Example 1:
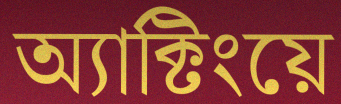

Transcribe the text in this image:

অ্যাক্টিংয়ে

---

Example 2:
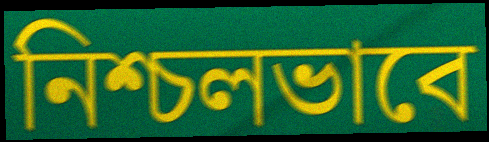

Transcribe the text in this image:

নিশ্চলভাবে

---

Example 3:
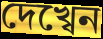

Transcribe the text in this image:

দেখ্বেন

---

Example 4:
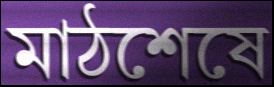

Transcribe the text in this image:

মাঠশেষে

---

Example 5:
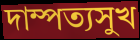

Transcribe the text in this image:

দাম্পত্যসুখ